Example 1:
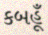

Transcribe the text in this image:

કબહૂઁ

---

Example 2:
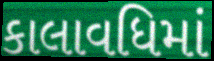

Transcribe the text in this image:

કાલાવધિમાં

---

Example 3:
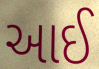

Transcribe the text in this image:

આઈ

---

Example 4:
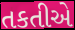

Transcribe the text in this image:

તકતીએ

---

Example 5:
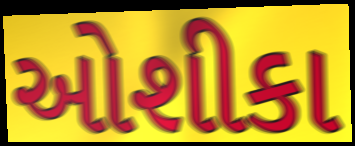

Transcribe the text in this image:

ઓશીકા